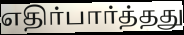
எதிர்பார்த்தது